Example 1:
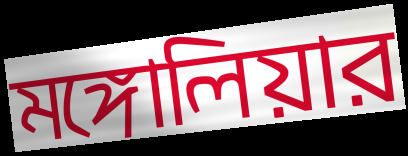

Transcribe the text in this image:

মঙ্গোলিয়ার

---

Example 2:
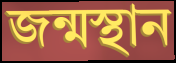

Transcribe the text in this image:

জন্মস্থান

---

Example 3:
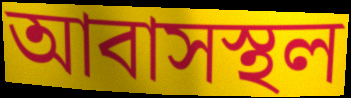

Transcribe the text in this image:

আবাসস্থল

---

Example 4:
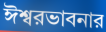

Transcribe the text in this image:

ঈশ্বরভাবনার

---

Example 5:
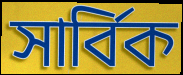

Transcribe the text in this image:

সার্বিক